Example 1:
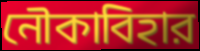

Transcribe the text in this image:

নৌকাবিহার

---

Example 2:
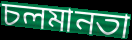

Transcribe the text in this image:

চলমানতা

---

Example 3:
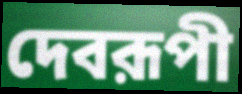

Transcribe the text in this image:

দেবরূপী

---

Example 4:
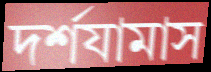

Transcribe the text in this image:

দর্শযামাস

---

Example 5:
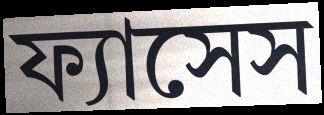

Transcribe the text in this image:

ফ্যাসেস